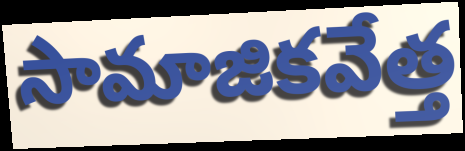
సామాజికవేత్త